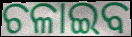
ଚଳାଇବ